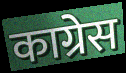
काग्रेस